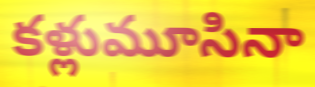
కళ్లుమూసినా